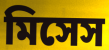
মিসেস